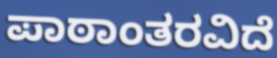
ಪಾಠಾಂತರವಿದೆ